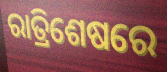
ରାତ୍ରିଶେଷରେ